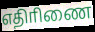
எதிரிணை